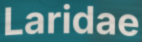
Laridae